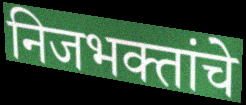
निजभक्तांचे